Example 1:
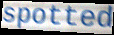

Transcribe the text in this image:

spotted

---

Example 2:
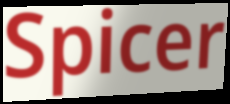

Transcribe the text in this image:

Spicer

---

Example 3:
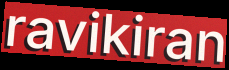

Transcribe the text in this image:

ravikiran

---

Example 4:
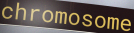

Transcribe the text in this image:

chromosome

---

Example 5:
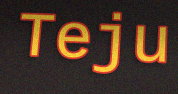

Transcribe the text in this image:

Teju